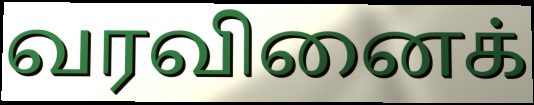
வரவினைக்